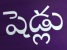
షెడ్లు